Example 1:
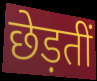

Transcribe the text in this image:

छेड़तीं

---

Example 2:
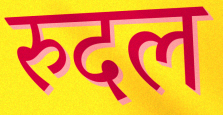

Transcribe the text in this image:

रुदल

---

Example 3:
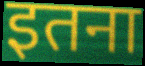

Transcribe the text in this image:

इतना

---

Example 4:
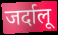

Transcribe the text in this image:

जर्दालू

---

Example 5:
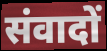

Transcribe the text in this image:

संवादों